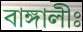
বাঙ্গালীঃ